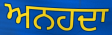
ਅਨਹਦਾ